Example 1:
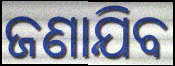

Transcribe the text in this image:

ଜଣାଯିବ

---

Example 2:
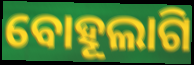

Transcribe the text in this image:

ବୋହୂଲାଗି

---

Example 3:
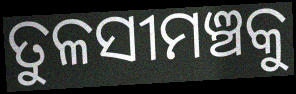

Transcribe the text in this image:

ତୁଳସୀମଞ୍ଚକୁ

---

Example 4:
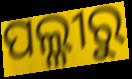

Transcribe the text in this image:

ପଲ୍ଳୀରୁ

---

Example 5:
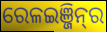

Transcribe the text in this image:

ରେଳଇଞ୍ଜିନ୍‌ର